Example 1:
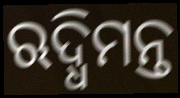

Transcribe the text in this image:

ଋଦ୍ଧିମନ୍ତ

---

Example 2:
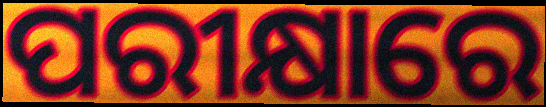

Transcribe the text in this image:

ପରୀକ୍ଷାରେ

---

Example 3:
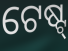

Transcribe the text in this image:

ଟେଷ୍ଟ୍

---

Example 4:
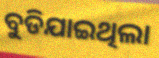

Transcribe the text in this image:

ବୁଡିଯାଇଥିଲା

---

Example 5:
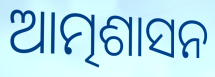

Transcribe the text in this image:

ଆତ୍ମଶାସନ